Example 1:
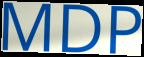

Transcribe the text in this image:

MDP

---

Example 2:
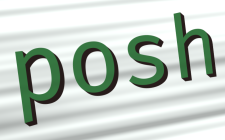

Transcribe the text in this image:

posh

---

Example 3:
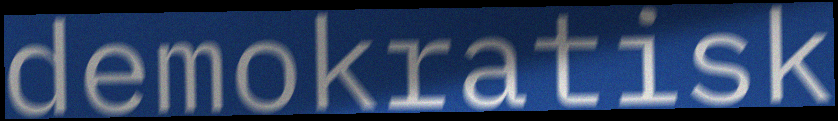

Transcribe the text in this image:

demokratisk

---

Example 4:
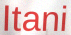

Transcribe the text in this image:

Itani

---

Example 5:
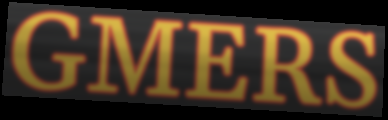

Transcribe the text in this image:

GMERS